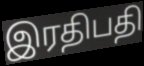
இரதிபதி